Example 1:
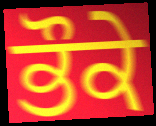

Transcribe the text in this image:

ਭੌਕੇ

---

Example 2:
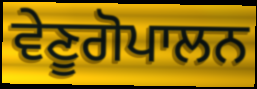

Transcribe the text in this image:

ਵੇਣੂਗੋਪਾਲਨ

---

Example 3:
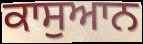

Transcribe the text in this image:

ਕਾਸੁਆਨ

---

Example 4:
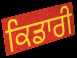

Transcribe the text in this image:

ਕਿਡਾਰੀ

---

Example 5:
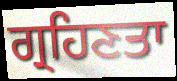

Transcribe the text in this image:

ਗ੍ਰਹਿਣਤਾ